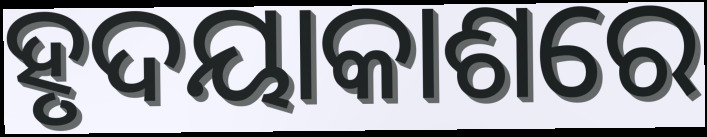
ହୃଦୟାକାଶରେ